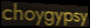
choygypsy